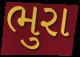
ભુરા